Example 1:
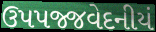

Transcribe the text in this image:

ઉપપજ્જવેદનીયં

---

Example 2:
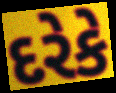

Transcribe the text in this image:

દરેકે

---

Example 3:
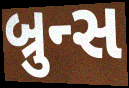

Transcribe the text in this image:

બ્રુન્સ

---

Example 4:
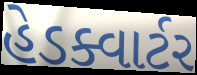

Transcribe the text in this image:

હેડક્વાર્ટર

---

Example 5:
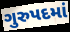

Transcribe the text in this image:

ગુરુપદમાં